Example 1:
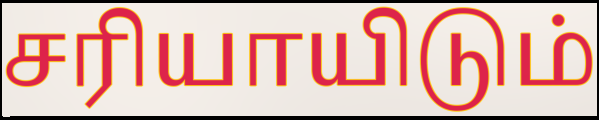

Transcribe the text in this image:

சரியாயிடும்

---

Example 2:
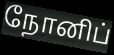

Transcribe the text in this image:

நோனிப்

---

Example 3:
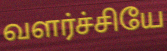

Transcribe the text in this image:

வளர்ச்சியே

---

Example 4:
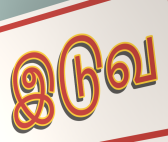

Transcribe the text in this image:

இடுவ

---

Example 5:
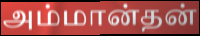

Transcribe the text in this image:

அம்மான்தன்